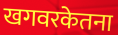
खगवरकेतना